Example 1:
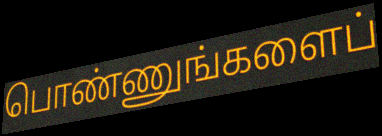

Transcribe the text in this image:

பொண்ணுங்களைப்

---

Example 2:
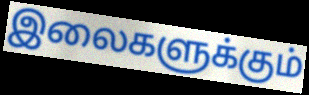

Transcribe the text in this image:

இலைகளுக்கும்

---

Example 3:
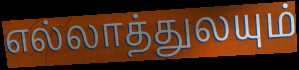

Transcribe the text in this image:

எல்லாத்துலயும்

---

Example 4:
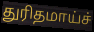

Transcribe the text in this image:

துரிதமாய்ச்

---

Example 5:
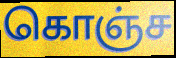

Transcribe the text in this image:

கொஞ்ச